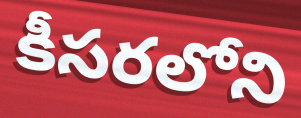
కీసరలోని